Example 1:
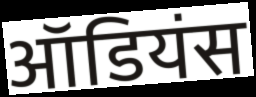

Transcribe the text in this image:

ऑडियंस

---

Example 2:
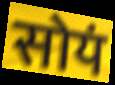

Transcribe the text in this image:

सोयं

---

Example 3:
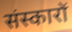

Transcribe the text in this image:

संस्कारों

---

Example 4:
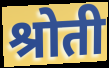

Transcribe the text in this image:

श्रोती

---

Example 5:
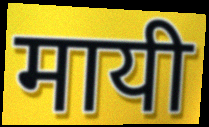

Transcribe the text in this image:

मायी